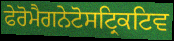
ਫੇਰੋਮੈਗਨੇਟੋਸਟ੍ਰਿਕਟਿਵ